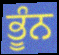
ਭੂੰਨ